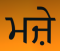
ਮਜ਼ੇ